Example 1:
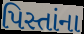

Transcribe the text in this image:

પિસ્તાંના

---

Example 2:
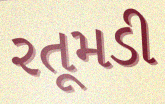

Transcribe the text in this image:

રતૂમડી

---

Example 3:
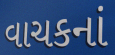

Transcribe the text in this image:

વાચકનાં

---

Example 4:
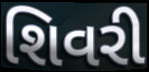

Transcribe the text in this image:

શિવરી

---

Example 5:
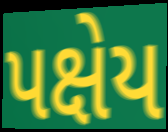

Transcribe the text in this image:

પક્ષેય